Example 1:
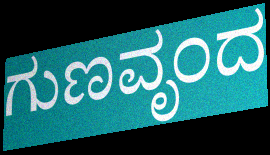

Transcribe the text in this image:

ಗುಣವೃಂದ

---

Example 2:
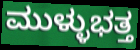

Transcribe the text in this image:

ಮುಳ್ಳುಭತ್ತ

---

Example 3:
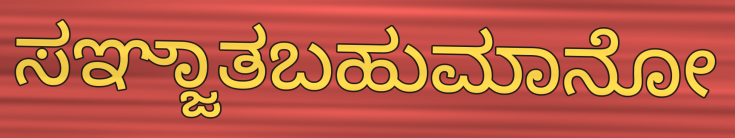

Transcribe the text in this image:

ಸಞ್ಜಾತಬಹುಮಾನೋ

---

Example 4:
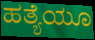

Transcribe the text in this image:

ಹತ್ಯೆಯೂ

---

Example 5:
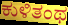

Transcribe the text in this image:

ಕುಳಿತಂಥ